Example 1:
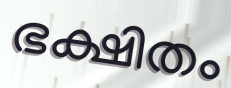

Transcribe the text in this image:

ഭക്ഷിതം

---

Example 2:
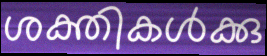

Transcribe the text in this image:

ശക്തികൾക്കു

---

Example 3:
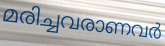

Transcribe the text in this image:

മരിച്ചവരാണവർ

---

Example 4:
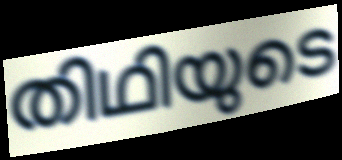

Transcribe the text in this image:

തിഥിയുടെ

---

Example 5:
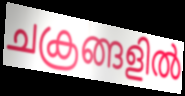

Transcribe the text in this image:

ചക്രങ്ങളിൽ